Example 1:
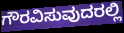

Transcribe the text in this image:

ಗೌರವಿಸುವುದರಲ್ಲಿ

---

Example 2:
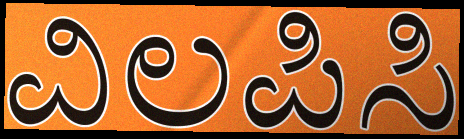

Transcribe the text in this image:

ವಿಲಪಿಸಿ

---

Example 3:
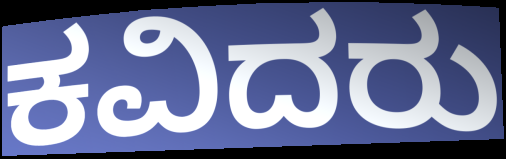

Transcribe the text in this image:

ಕವಿದರು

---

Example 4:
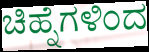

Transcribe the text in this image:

ಚಿಹ್ನೆಗಳಿಂದ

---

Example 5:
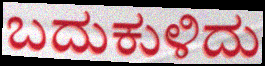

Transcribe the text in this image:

ಬದುಕುಳಿದು